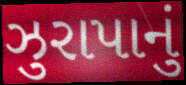
ઝુરાપાનું